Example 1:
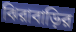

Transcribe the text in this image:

ঝিরাবাড়ির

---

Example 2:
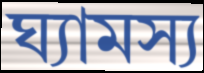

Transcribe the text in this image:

ঘ্যামস্য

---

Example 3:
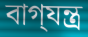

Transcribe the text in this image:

বাগ্‌যন্ত্র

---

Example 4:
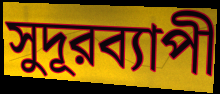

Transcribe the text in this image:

সুদূরব্যাপী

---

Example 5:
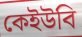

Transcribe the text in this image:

কেইউবি